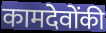
कामदेवोंकी